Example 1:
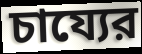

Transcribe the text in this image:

চায্যের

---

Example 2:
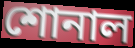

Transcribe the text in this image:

শোনাল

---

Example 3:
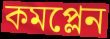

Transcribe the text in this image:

কমপ্লেন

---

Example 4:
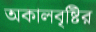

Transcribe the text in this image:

অকালবৃষ্টির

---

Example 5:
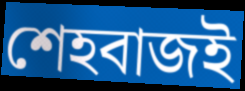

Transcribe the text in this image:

শেহবাজই